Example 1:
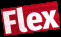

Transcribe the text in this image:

Flex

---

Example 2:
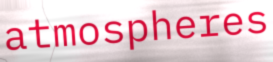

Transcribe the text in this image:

atmospheres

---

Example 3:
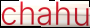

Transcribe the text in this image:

chahu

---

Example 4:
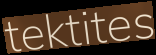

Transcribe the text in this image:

tektites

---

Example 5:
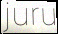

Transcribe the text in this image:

juru